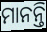
ମାନନ୍ତି